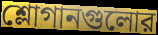
শ্লোগানগুলোর